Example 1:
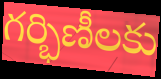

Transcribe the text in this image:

గర్భిణీలకు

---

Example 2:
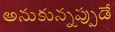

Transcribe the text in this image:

అనుకున్నప్పుడే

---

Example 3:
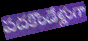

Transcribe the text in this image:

పదకొండేళ్లుగా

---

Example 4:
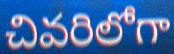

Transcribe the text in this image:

చివరిలోగా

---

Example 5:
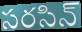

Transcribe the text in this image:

సరసిన్